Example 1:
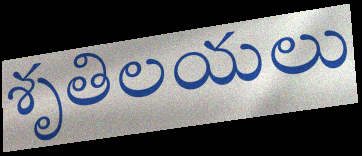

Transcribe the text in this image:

శృతిలయలు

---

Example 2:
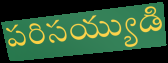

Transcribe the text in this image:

పరిసయ్యుడి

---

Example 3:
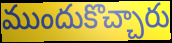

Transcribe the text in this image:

ముందుకొచ్చారు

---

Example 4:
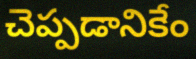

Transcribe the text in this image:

చెప్పడానికేం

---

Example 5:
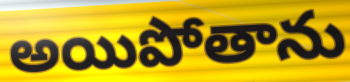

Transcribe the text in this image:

అయిపోతాను